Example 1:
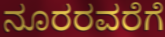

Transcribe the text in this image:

ನೂರರವರೆಗೆ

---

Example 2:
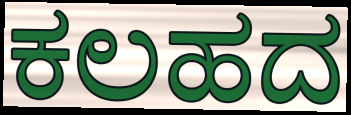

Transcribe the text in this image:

ಕಲಹದ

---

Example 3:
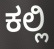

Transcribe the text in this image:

ಕಲ್ಲಿ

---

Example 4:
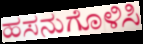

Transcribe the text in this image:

ಹಸನುಗೊಳಿಸಿ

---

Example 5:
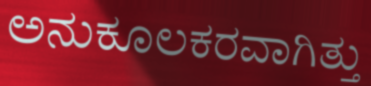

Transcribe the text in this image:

ಅನುಕೂಲಕರವಾಗಿತ್ತು